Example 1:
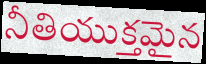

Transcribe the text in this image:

నీతియుక్తమైన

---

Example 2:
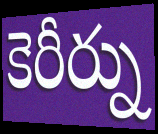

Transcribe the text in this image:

కెరీర్ను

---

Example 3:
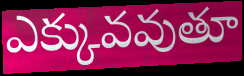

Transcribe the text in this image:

ఎక్కువవుతూ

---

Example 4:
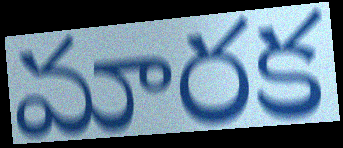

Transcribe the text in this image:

మారక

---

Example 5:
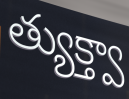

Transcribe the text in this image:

త్యుక్త్వా